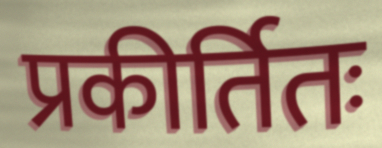
प्रकीर्तितः